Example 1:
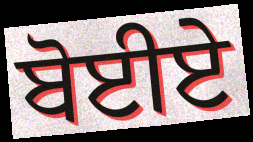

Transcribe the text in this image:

ਬੋਈਏ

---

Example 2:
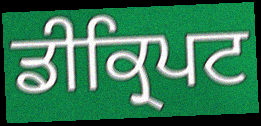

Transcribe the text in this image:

ਡੀਕ੍ਰਿਪਟ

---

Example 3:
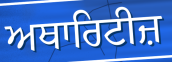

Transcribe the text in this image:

ਅਥਾਰਿਟੀਜ਼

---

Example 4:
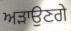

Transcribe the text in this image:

ਅੜਾਉਣਗੇ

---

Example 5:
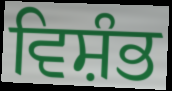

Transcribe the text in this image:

ਵਿਸ਼ੰਭ